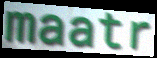
maatr